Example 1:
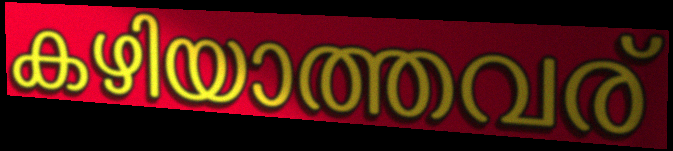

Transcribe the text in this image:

കഴിയാത്തവര്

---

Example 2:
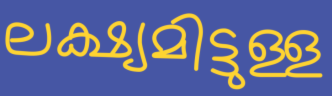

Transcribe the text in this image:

ലക്ഷ്യമിട്ടുള്ള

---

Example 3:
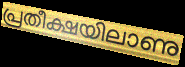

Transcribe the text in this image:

പ്രതീക്ഷയിലാണു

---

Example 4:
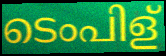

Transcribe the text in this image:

ടെംപിള്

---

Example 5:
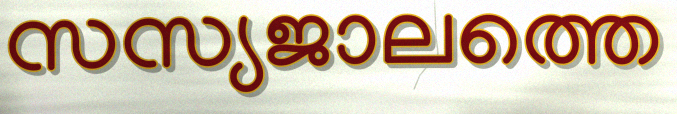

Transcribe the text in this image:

സസ്യജാലത്തെ